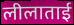
लीलाताई